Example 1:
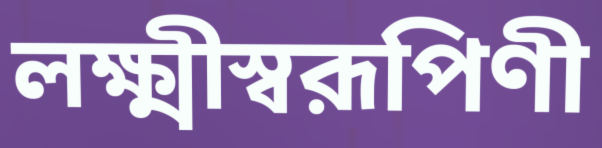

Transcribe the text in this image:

লক্ষ্মীস্বরূপিণী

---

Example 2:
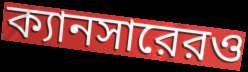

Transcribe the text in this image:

ক্যানসারেরও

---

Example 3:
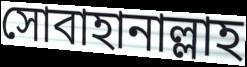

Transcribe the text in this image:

সোবাহানাল্লাহ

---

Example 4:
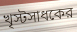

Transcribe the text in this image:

খৃস্টসাধকের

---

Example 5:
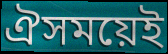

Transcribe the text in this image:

ঐসময়েই